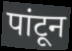
पांटून